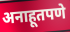
अनाहूतपणे